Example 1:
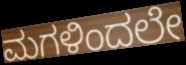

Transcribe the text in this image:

ಮಗಳಿಂದಲೇ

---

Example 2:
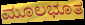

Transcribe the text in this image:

ಮೂಲಭೂತ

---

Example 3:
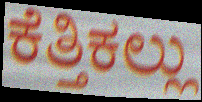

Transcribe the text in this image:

ಕೆತ್ತಿಕಲ್ಲು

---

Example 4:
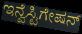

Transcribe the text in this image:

ಇನ್ವೆಸ್ಟಿಗೇಷನ್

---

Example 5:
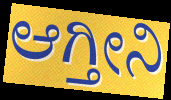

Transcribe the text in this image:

ಆಗ್ತೀನಿ